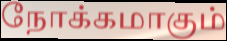
நோக்கமாகும்